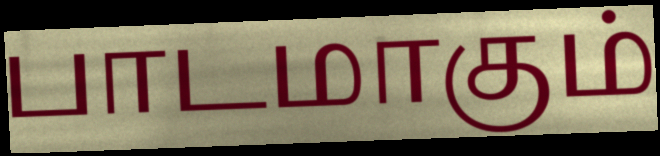
பாடமாகும்